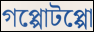
গপ্পোটপ্পো